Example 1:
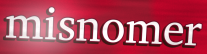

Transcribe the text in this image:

misnomer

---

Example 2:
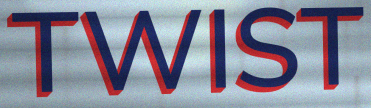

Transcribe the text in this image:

TWIST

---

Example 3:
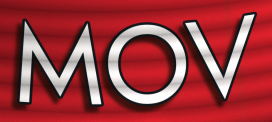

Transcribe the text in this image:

MOV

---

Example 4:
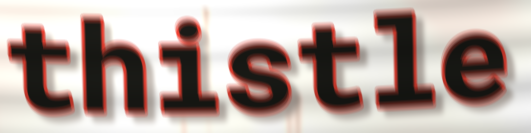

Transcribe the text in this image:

thistle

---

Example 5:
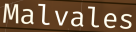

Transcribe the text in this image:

Malvales